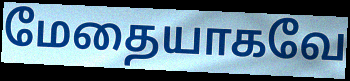
மேதையாகவே